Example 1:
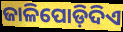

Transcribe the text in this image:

ଜାଳିପୋଡ଼ିଦିଏ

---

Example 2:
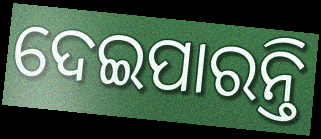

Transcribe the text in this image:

ଦେଇପାରନ୍ତି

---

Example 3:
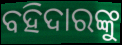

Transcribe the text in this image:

ବହିଦାରଙ୍କୁ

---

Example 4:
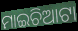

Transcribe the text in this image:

ମାଇଚିଆଟା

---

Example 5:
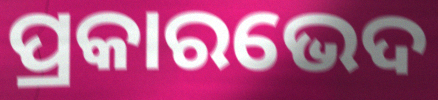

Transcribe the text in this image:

ପ୍ରକାରଭେଦ